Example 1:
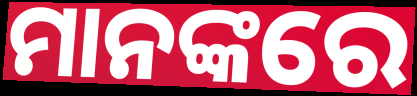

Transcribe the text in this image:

ମାନଙ୍କରେ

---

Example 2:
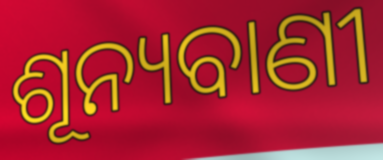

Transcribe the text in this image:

ଶୂନ୍ୟବାଣୀ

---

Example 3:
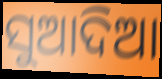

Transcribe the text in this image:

ସୁଆଦିଆ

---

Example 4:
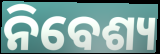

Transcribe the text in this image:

ନିବେଶ୍ୟ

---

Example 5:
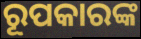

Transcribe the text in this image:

ରୂପକାରଙ୍କ